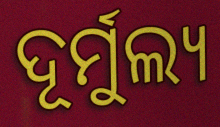
ଦୂର୍ମୁଲ୍ୟ